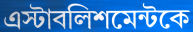
এস্টাবলিশমেন্টকে